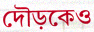
দৌড়কেও